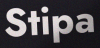
Stipa